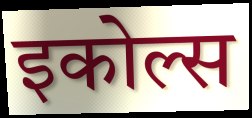
इकोल्स